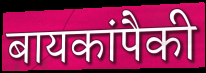
बायकांपैकी